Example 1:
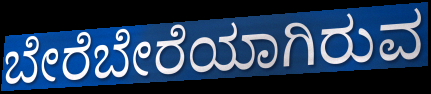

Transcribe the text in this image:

ಬೇರೆಬೇರೆಯಾಗಿರುವ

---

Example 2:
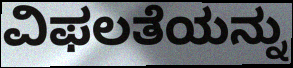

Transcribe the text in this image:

ವಿಫಲತೆಯನ್ನು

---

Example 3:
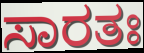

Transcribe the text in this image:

ಸಾರತಃ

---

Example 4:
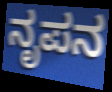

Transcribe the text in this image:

ನೃಪನ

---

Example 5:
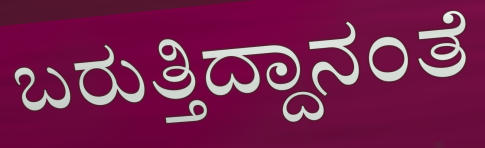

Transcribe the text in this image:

ಬರುತ್ತಿದ್ದಾನಂತೆ